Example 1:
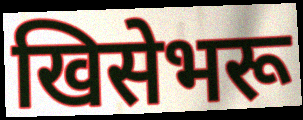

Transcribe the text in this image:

खिसेभरू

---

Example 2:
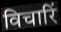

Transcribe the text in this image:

विचारिं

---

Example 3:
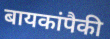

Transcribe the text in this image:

बायकांपैकी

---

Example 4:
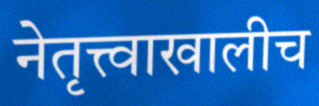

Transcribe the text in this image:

नेतृत्त्वाखालीच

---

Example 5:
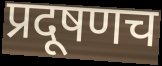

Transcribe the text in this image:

प्रदूषणच